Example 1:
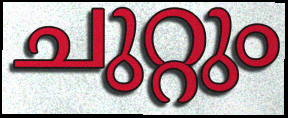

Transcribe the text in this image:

ചുറ്റും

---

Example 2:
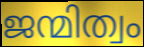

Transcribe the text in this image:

ജന്മിത്വം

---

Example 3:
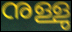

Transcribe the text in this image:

നുള്ളു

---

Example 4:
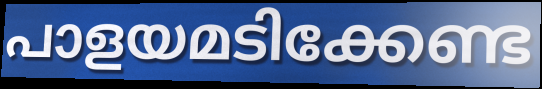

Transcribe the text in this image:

പാളയമടിക്കേണ്ട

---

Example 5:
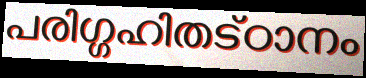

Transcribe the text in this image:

പരിഗ്ഗഹിതട്ഠാനം